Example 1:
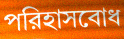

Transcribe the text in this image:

পরিহাসবোধ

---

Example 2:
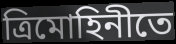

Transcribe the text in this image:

ত্রিমোহিনীতে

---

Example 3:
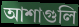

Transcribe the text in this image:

আশাগুলি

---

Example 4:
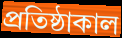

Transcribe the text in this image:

প্রতিষ্ঠাকাল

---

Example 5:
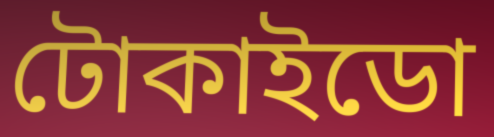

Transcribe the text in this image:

টোকাইডো